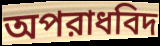
অপরাধবিদ